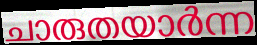
ചാരുതയാർന്ന